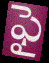
ఫై